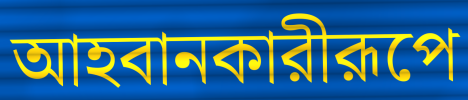
আহবানকারীরূপে